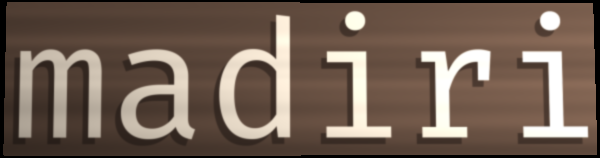
madiri